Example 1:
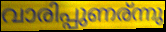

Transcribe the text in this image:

വാരിപ്പുണര്ന്നു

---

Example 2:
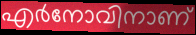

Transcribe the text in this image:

എർനോവിനാണ്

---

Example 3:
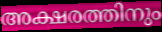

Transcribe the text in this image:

അക്ഷരത്തിനും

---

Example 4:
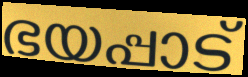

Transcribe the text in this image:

ഭയപ്പാട്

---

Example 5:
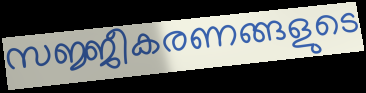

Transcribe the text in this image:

സജ്ജീകരണങ്ങളുടെ